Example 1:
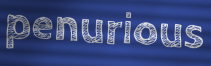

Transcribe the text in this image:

penurious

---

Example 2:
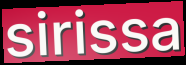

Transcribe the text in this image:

sirissa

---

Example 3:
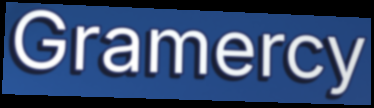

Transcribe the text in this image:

Gramercy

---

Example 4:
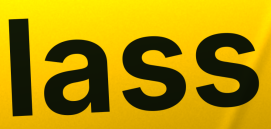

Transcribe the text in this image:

lass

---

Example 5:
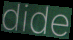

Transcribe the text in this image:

dide